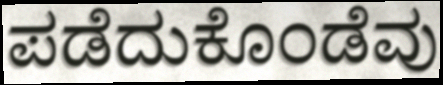
ಪಡೆದುಕೊಂಡೆವು